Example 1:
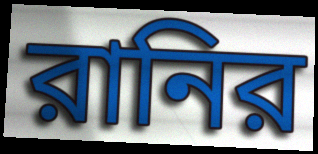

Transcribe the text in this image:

রানির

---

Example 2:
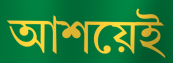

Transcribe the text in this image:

আশয়েই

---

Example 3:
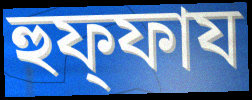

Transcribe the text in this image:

হুফ্ফায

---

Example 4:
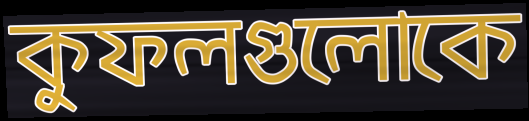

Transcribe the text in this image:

কুফলগুলোকে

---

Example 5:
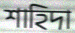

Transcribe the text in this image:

শাহিদা